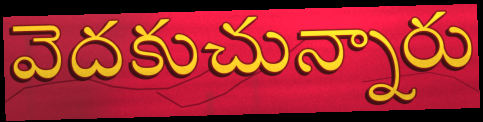
వెదకుచున్నారు